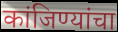
कांजिण्यांचा